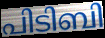
പിടിബി